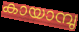
കായാമ്പു